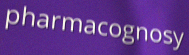
pharmacognosy